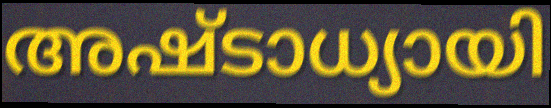
അഷ്ടാധ്യായി